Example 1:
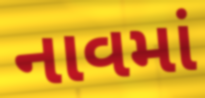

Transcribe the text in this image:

નાવમાં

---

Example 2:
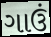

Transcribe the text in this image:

ગાઉં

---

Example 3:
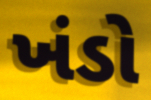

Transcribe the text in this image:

ખંડો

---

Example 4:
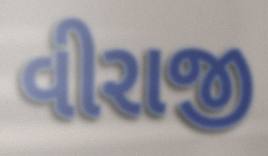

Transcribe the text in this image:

વીરાજી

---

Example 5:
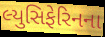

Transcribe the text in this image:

લ્યુસિફેરિનના